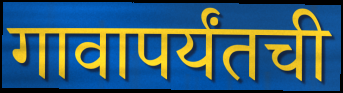
गावापर्यंतची